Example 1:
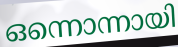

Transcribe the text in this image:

ഒന്നൊന്നായി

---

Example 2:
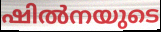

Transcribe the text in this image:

ഷിൽനയുടെ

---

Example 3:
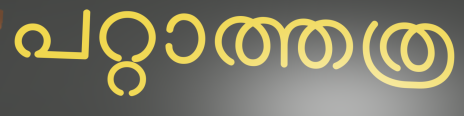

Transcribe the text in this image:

പറ്റാത്തത്ര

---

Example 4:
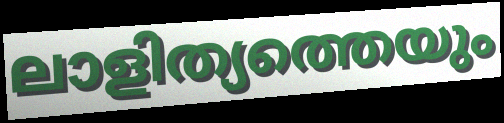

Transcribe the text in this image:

ലാളിത്യത്തെയും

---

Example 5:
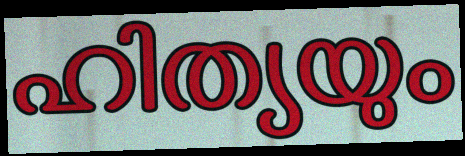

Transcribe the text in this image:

ഹിത്യയും